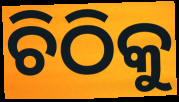
ଚିଠିକୁ